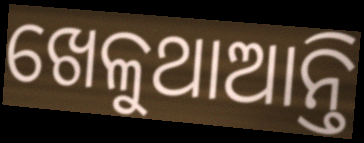
ଖେଳୁଥାଆନ୍ତି